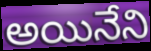
అయినేని